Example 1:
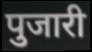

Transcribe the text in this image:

पुजारी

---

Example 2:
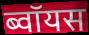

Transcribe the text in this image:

ब्वॉयस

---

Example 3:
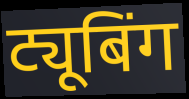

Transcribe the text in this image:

ट्यूबिंग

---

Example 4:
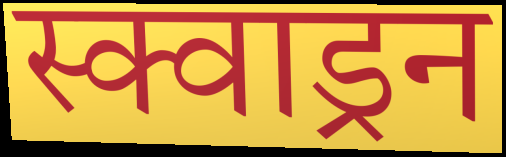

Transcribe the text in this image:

स्क्वाड्रन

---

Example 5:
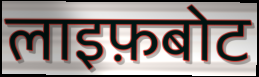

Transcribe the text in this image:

लाइफ़बोट